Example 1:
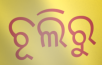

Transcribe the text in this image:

ଚୂଲିରୁ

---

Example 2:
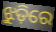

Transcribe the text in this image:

ଝୁଡ଼ିରେ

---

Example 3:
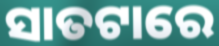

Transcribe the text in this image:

ସାତଟାରେ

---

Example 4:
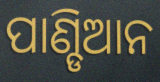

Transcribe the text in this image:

ପାଣ୍ଡିଆନ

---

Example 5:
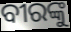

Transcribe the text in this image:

ବୀରଙ୍କୁ